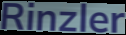
Rinzler